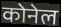
कोनेल